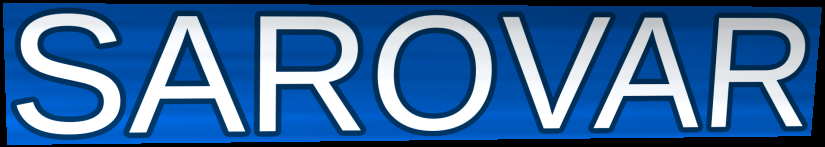
SAROVAR